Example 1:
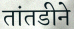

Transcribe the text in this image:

तांतडीने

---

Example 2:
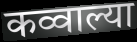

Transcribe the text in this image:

कव्वाल्या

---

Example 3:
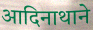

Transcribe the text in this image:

आदिनाथाने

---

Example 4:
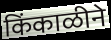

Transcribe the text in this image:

किंकाळीने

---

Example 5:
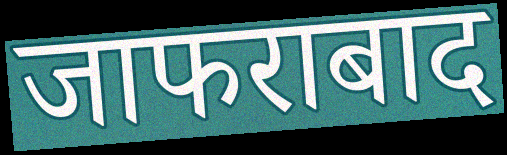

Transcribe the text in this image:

जाफराबाद